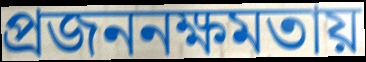
প্রজননক্ষমতায়